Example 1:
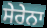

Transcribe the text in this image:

ਸੇਰੇਨਾ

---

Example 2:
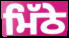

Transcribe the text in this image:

ਮਿੱਠੇ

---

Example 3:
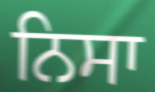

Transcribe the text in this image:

ਨਿਸਾ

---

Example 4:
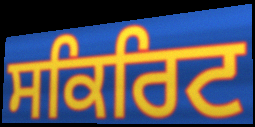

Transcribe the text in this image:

ਸਕਿਰਿਟ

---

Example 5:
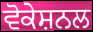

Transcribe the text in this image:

ਵੋਕੇਸ਼ਨਲ